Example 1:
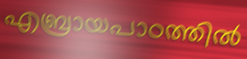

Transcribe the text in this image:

എബ്രായപാഠത്തിൽ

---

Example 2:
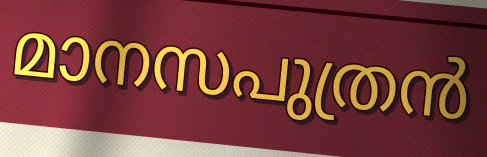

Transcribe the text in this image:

മാനസപുത്രൻ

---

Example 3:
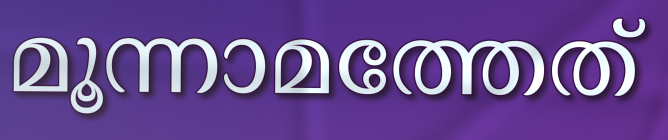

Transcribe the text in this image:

മൂന്നാമത്തേത്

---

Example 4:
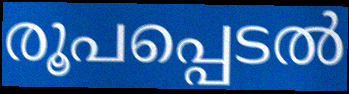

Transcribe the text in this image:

രൂപപ്പെടൽ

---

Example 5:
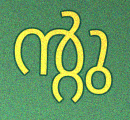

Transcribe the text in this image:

ന്റു